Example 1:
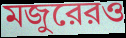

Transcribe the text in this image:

মজুরেরও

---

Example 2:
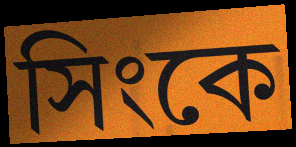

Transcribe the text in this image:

সিংকে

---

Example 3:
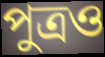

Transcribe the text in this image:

পুত্রও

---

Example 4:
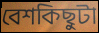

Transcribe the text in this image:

বেশকিছুটা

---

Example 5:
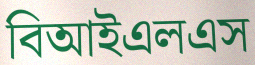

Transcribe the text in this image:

বিআইএলএস